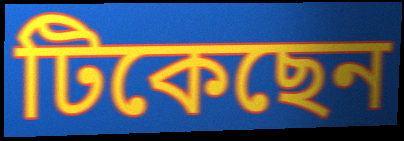
টিকেছেন